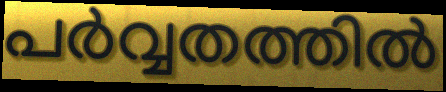
പർവ്വതത്തിൽ